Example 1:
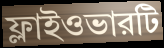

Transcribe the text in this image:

ফ্লাইওভারটি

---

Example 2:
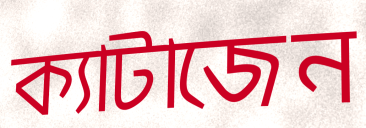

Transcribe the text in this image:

ক্যাটাজেন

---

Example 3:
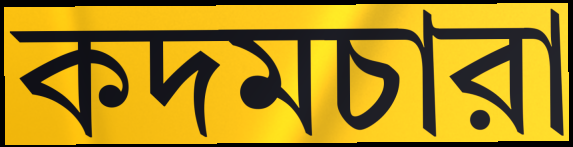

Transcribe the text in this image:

কদমচারা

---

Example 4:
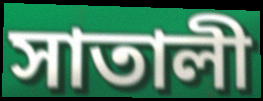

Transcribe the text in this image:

সাতালী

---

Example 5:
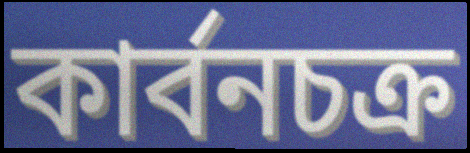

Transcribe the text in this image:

কার্বনচক্র